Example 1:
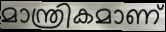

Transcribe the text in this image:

മാന്ത്രികമാണ്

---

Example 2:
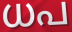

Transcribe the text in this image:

ധപ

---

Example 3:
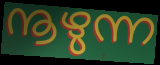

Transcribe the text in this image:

നൂഴുന്ന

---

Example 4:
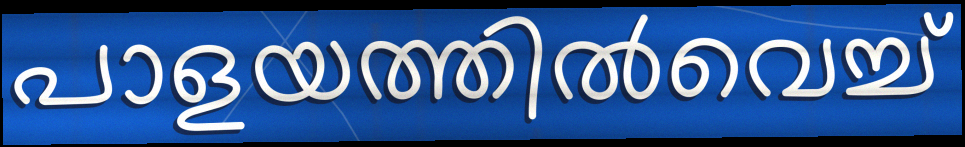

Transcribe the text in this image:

പാളയത്തിൽവെച്ച്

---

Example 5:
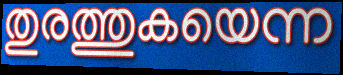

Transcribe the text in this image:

തുരത്തുകയെന്ന